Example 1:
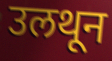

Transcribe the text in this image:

उलथून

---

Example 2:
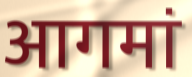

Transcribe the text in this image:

आगमां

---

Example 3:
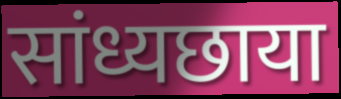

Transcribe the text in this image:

सांध्यछाया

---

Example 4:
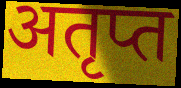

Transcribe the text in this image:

अतृप्त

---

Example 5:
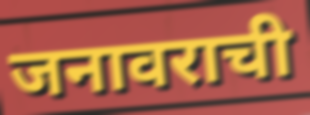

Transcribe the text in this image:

जनावराची